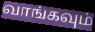
வாங்கவும்